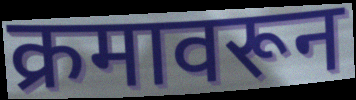
क्रमावरून